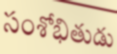
సంశోభితుడు